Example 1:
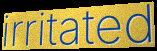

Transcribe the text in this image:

irritated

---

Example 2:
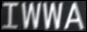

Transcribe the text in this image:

IWWA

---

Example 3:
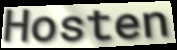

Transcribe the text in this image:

Hosten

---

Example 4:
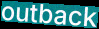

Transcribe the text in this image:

outback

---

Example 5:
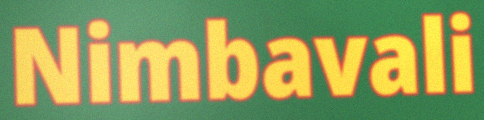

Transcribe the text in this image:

Nimbavali